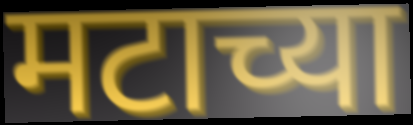
मटाच्या